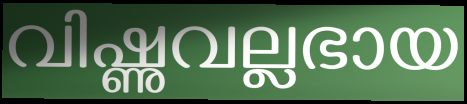
വിഷ്ണുവല്ലഭായ